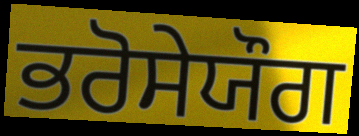
ਭਰੋਸੇਯੌਗ